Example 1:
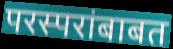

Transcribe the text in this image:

परस्परांबाबत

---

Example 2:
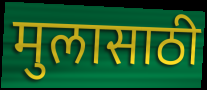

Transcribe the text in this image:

मुलासाठी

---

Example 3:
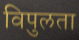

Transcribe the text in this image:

विपुलता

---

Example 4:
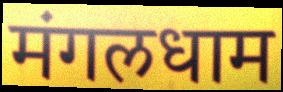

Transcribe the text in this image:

मंगलधाम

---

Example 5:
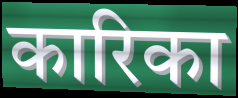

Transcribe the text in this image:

कारिका